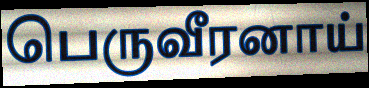
பெருவீரனாய்